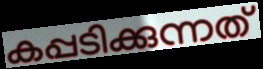
കപ്പടിക്കുന്നത്